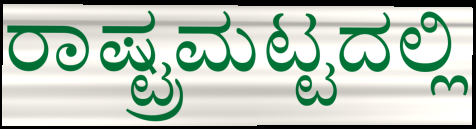
ರಾಷ್ಟ್ರಮಟ್ಟದಲ್ಲಿ